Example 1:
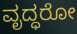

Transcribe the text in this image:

ವೃದ್ಧರೋ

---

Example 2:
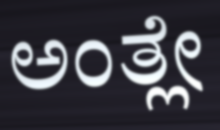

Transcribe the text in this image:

ಅಂತ್ಲೇ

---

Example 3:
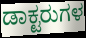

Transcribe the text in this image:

ಡಾಕ್ಟರುಗಳ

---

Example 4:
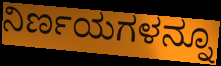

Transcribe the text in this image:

ನಿರ್ಣಯಗಳನ್ನೂ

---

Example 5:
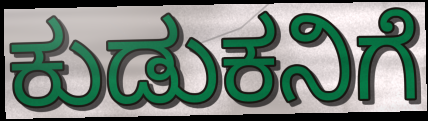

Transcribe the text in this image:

ಕುಡುಕನಿಗೆ